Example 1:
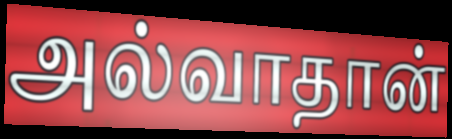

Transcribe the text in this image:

அல்வாதான்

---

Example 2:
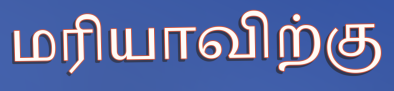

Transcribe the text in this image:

மரியாவிற்கு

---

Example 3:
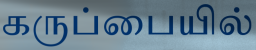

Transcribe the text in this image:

கருப்பையில்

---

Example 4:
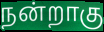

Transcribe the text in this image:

நன்றாகு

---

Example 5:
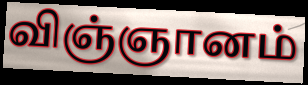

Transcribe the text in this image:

விஞ்ஞானம்